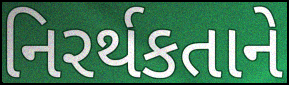
નિરર્થકતાને